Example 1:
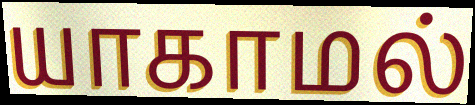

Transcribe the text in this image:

யாகாமல்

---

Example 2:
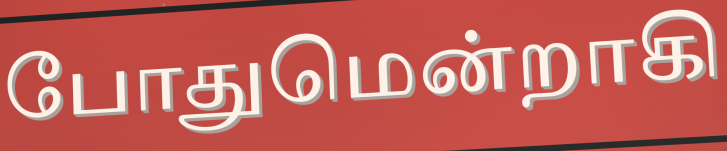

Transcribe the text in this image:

போதுமென்றாகி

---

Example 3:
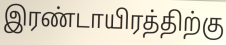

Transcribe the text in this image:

இரண்டாயிரத்திற்கு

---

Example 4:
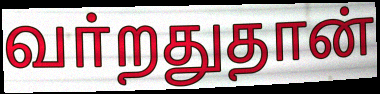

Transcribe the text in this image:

வர்றதுதான்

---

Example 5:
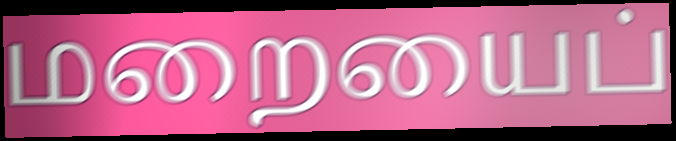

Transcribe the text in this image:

மறையைப்